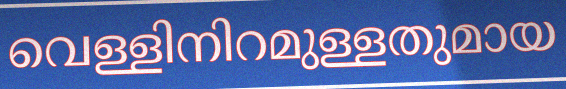
വെള്ളിനിറമുള്ളതുമായ